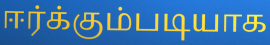
ஈர்க்கும்படியாக